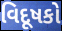
વિદૂષકો